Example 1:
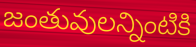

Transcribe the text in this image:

జంతువులన్నింటికి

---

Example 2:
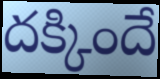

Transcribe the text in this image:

దక్కిందే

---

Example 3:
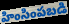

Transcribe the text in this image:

హింసింపబడి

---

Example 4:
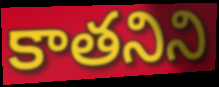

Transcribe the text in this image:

కాతనిని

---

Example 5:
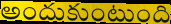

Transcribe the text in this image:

అందుకుంటుంది